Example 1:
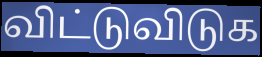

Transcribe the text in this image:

விட்டுவிடுக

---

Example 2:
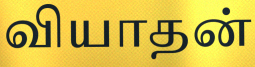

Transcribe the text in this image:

வியாதன்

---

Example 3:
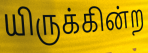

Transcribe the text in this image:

யிருக்கின்ற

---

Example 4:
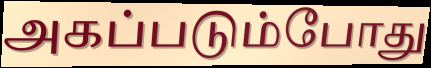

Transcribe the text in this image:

அகப்படும்போது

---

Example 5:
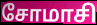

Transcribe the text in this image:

சோமாசி